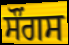
ਸੌਂਗਸ